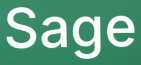
Sage